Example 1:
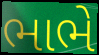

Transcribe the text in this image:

ભાભે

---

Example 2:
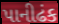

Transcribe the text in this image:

પાનીઢંક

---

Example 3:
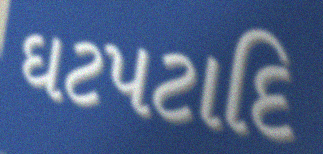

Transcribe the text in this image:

ઘટપટાદિ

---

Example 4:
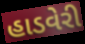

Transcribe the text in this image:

હાડવેરી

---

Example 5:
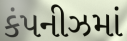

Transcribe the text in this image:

કંપનીઝમાં